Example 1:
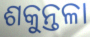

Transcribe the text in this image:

ଶକୁନ୍ତଳା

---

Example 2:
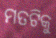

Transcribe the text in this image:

ମତଟିକୁ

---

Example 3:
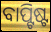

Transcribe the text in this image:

ବାପ୍ଟିଷ୍ଟ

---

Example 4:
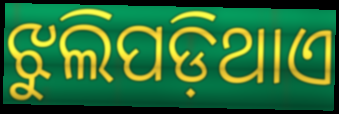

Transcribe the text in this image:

ଝୁଲିପଡ଼ିଥାଏ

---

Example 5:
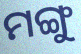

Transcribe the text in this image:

ମଙ୍ଗୁ